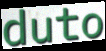
duto